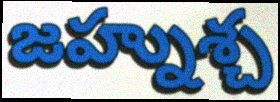
జహ్నుశ్చ